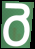
రె